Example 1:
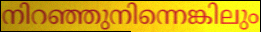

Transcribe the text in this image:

നിറഞ്ഞുനിന്നെങ്കിലും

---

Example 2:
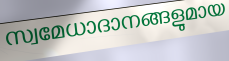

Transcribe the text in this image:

സ്വമേധാദാനങ്ങളുമായ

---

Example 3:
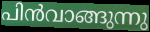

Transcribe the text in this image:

പിൻവാങ്ങുന്നു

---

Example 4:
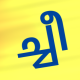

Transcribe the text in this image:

ച്ചീ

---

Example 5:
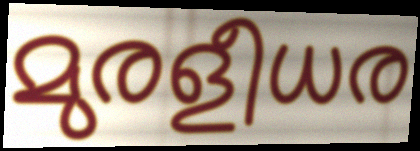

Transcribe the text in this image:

മുരളീധര